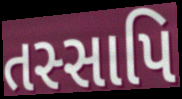
તસ્સાપિ